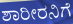
ಶಾರೀರನಿಗೆ